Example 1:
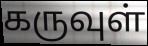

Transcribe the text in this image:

கருவுள்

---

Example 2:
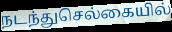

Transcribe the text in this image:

நடந்துசெல்கையில்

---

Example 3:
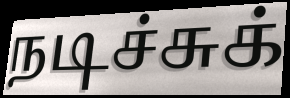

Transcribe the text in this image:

நடிச்சுக்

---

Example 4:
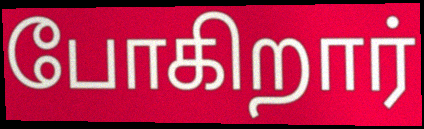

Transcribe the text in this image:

போகிறார்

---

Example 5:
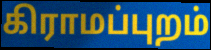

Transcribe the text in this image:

கிராமப்புறம்